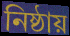
নিষ্ঠায়